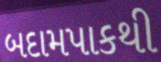
બદામપાકથી